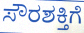
ಸೌರಶಕ್ತಿಗೆ